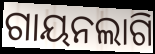
ଗାୟନଲାଗି